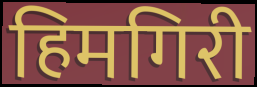
हिमगिरी